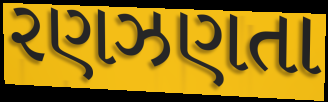
રણઝણતા